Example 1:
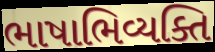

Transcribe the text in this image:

ભાષાભિવ્યક્તિ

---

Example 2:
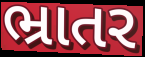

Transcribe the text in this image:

ભ્રાતર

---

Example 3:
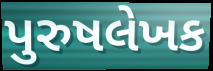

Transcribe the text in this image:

પુરુષલેખક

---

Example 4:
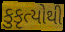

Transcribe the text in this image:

કુકૃત્યોથી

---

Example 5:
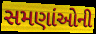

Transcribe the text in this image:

સમણાંઓની